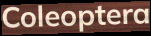
Coleoptera